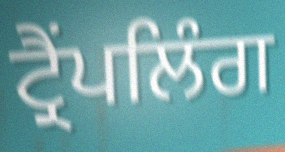
ਟ੍ਰੈਂਪਲਿੰਗ